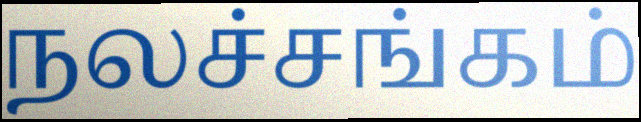
நலச்சங்கம்